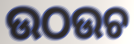
ଉଠଉଚ